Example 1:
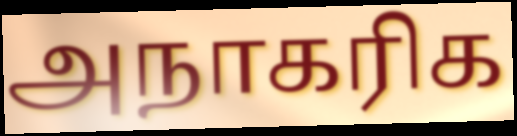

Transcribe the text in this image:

அநாகரிக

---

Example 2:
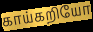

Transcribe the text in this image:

காய்கறியோ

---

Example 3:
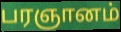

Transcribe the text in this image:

பரஞானம்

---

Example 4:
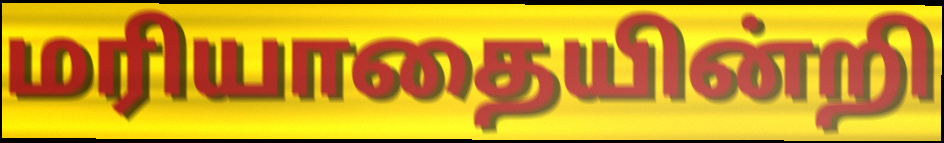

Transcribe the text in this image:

மரியாதையின்றி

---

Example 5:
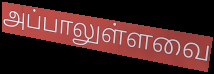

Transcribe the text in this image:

அப்பாலுள்ளவை